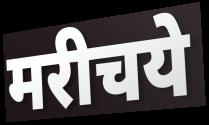
मरीचये